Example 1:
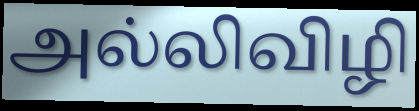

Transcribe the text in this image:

அல்லிவிழி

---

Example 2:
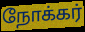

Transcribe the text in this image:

நோக்கர்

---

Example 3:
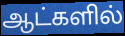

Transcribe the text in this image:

ஆட்களில்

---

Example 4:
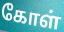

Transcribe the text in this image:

கோள்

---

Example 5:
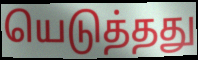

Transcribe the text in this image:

யெடுத்தது